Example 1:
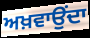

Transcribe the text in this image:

ਅਖ਼ਵਾਉਂਦਾ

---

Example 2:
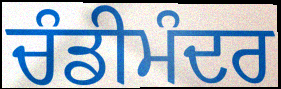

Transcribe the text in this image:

ਚੰਡੀਮੰਦਰ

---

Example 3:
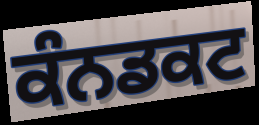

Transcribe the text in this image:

ਕੰਨਡਕਟ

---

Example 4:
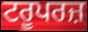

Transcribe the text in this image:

ਟਰੂਪਰਜ਼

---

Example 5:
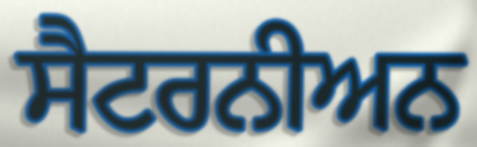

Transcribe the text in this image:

ਸੈਟਰਨੀਅਨ